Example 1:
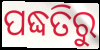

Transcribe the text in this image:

ପଦ୍ଧତିରୁ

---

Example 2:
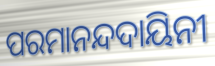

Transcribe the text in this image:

ପରମାନନ୍ଦଦାୟିନୀ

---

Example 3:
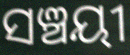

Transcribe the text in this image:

ସଞ୍ଚୟୀ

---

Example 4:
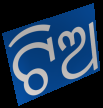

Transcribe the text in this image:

ଟିଅ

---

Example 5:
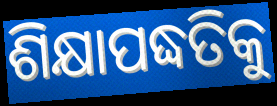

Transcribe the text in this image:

ଶିକ୍ଷାପଦ୍ଧତିକୁ